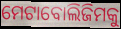
ମେଟାବୋଲିଜିମକୁ